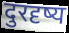
दुरदृष्य